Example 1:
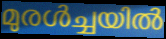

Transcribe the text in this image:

മുരൾച്ചയിൽ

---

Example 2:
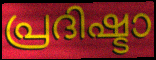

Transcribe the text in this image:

പ്രദിഷ്ടാ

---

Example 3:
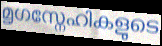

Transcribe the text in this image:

മൃഗസ്നേഹികളുടെ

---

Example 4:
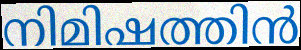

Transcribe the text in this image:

നിമിഷത്തിൻ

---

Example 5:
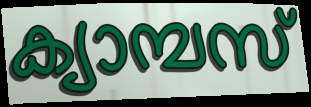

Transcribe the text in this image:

ക്യാമ്പസ്